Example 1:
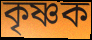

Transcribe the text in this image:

কৃষ্ণক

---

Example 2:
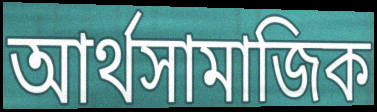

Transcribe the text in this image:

আৰ্থসামাজিক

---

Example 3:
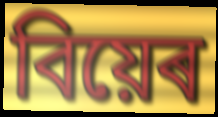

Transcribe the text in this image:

বিয়েৰ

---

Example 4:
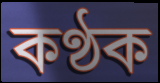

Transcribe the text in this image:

কণ্ঠক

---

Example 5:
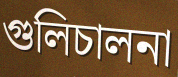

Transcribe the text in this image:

গুলিচালনা